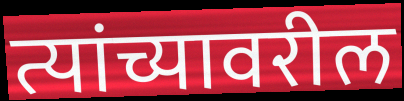
त्यांच्यावरील